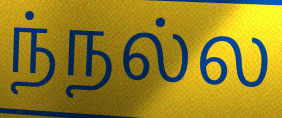
ந்நல்ல